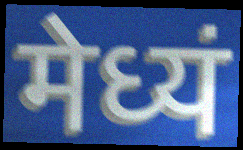
मेध्यं